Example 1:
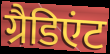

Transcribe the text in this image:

ग्रैडिएंट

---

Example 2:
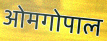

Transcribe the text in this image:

ओमगोपाल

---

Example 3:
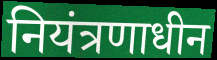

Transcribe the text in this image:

नियंत्रणाधीन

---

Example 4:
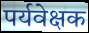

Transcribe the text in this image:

पर्यवेक्षक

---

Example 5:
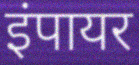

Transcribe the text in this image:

इंपायर